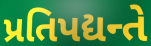
પ્રતિપદ્યન્તે